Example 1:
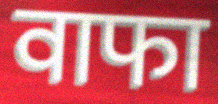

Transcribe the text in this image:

वाफा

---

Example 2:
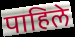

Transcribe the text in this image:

पाहिले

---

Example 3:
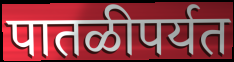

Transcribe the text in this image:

पातळीपर्यत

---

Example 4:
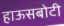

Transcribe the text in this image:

हाऊसबोटी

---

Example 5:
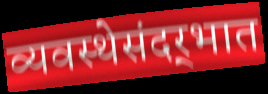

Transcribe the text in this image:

व्यवस्थेसंदर्भात